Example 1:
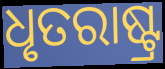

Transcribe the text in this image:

ଧୃତରାଷ୍ଟ୍ର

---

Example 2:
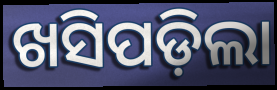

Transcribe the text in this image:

ଖସିପଡ଼ିଲା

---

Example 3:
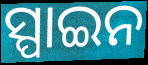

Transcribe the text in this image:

ସ୍ପାଇନ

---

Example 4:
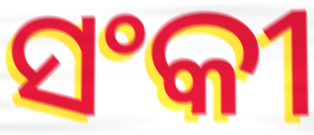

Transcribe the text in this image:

ସଂକୀ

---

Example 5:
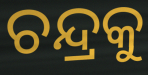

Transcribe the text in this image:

ଚନ୍ଦ୍ରକୁ